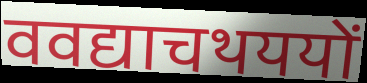
ववद्याचथययों